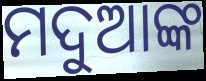
ମଦୁଆଙ୍କ